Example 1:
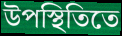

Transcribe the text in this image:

উপস্থিতিতে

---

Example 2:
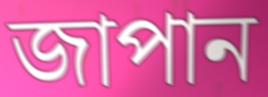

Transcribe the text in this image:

জাপান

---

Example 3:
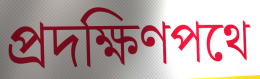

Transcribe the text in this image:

প্রদক্ষিণপথে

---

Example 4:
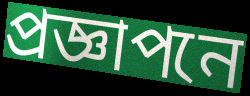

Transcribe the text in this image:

প্রজ্ঞাপনে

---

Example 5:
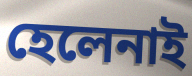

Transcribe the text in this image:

হেলেনাই